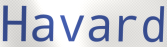
Havard